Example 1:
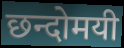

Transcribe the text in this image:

छन्दोमयी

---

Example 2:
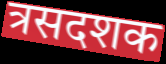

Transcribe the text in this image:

त्रसदशक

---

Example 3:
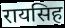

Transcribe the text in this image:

रायसिह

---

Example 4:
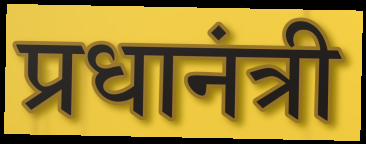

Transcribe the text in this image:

प्रधानंत्री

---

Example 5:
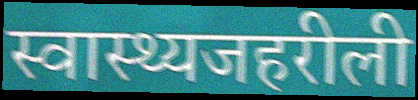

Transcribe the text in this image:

स्वास्थ्यजहरीली